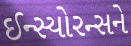
ઈન્સ્યોરન્સને